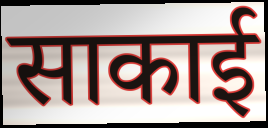
साकाई